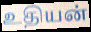
உதியன்